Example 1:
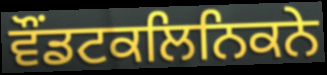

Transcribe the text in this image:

ਵੌਂਡਟਕਲਿਨਿਕਨੇ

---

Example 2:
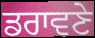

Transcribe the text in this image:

ਡਰਾਵਣੇ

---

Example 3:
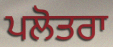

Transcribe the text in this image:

ਪਲੋਤਰਾ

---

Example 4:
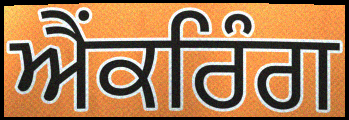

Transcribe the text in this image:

ਐਂਕਰਿੰਗ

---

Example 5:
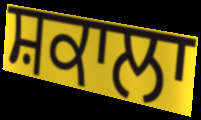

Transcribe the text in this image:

ਸ਼ਕਾਲਾ